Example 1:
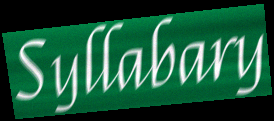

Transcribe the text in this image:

Syllabary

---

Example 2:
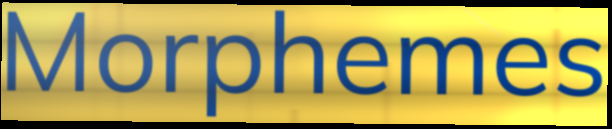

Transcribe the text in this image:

Morphemes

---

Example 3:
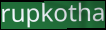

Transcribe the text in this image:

rupkotha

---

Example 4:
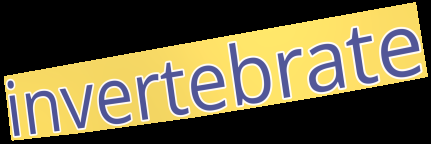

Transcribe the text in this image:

invertebrate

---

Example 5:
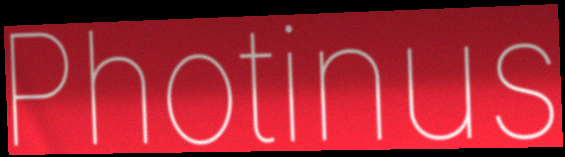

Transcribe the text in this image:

Photinus